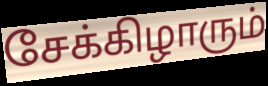
சேக்கிழாரும்